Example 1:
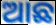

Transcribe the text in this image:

ଆଛ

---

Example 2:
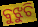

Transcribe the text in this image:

ବୁଝୁଚି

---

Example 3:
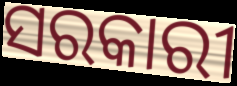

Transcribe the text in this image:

ସରକାରୀ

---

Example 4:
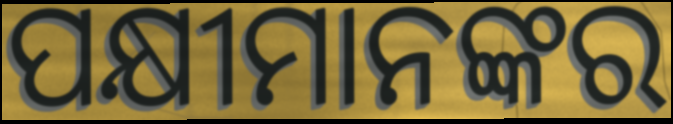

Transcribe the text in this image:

ପକ୍ଷୀମାନଙ୍କର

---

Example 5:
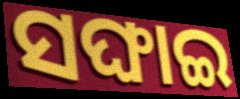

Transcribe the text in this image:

ସଙ୍ଘାଇ